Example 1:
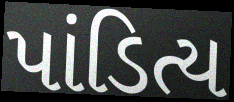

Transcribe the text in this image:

પાંડિત્ય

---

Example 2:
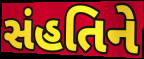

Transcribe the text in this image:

સંહતિને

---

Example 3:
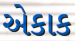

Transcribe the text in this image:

એકાક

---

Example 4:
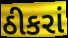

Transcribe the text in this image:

ઠીકરાં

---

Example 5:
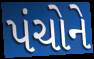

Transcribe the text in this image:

પંચોને